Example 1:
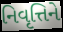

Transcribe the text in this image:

નિવૃત્તિને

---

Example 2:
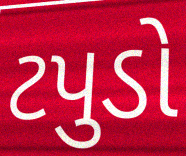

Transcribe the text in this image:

ટપુડો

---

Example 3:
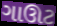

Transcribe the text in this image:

ગાઊટ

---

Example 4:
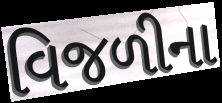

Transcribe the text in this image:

વિજળીના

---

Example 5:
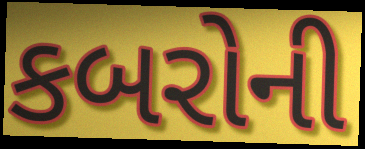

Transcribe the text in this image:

કબરોની